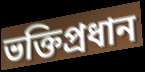
ভক্তিপ্রধান